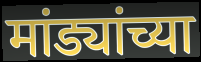
मांड्यांच्या